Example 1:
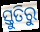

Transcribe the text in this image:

ସ୍ତୁତିରୁ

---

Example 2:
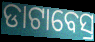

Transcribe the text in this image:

ଡାଟାବେସ୍ର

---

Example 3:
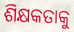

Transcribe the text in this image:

ଶିକ୍ଷକତାକୁ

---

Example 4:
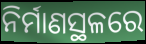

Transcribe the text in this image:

ନିର୍ମାଣସ୍ଥଳରେ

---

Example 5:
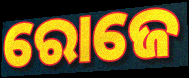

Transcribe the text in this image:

ରୋଜେ